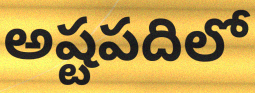
అష్టపదిలో